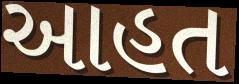
આહત